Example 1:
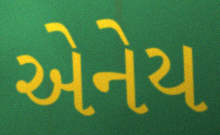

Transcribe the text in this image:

એનેય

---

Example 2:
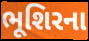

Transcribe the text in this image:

ભૂશિરના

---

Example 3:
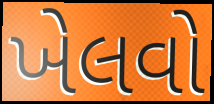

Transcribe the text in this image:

ખેલવો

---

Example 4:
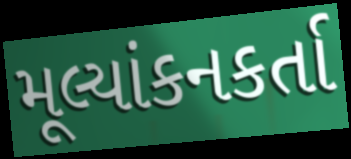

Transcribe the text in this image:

મૂલ્યાંકનકર્તા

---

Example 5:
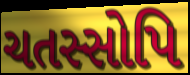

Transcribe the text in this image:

ચતસ્સોપિ